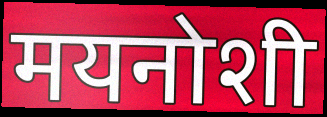
मयनोशी